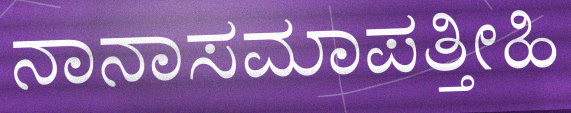
ನಾನಾಸಮಾಪತ್ತೀಹಿ